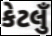
કેટલુઁ